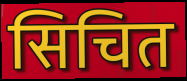
सिचित